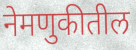
नेमणुकीतील